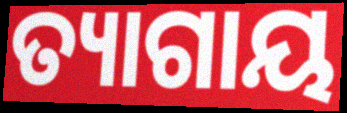
ତ୍ୟାଗାୟ